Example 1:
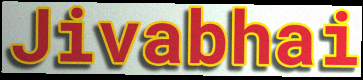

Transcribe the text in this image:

Jivabhai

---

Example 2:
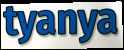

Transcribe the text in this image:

tyanya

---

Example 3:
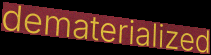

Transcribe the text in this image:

dematerialized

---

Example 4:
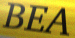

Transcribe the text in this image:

BEA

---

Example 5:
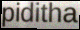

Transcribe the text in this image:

piditha